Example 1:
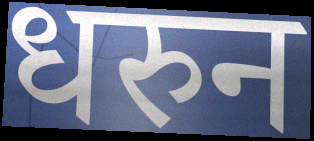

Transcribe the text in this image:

धरुन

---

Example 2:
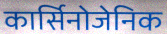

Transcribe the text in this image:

कार्सिनोजेनिक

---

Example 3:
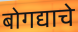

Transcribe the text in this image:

बोगद्याचे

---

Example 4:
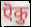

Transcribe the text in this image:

ऎकु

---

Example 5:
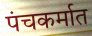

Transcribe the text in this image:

पंचकर्मात